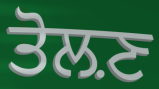
ਤੋਲ਼ਣ